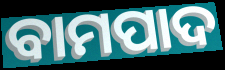
ବାମପାଦ